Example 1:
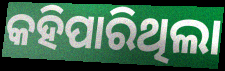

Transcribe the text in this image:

କହିପାରିଥିଲା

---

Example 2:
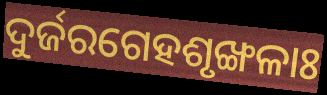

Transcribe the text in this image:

ଦୁର୍ଜରଗେହଶୃଙ୍ଖଳାଃ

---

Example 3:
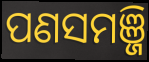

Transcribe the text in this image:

ପଣସମଞ୍ଜି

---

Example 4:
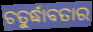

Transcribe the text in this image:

ଚତୁର୍ଦ୍ଧାବତାର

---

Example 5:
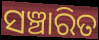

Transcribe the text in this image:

ସଞ୍ଚାରିତ